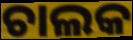
ଚାଲକ